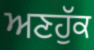
ਅਣਹੁੱਕ